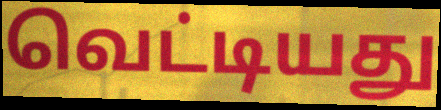
வெட்டியது